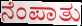
ನೆಂಪಾತು